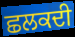
ਛਲਕਦੀ